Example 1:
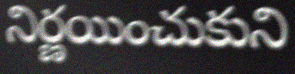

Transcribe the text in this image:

నిర్ణయించుకుని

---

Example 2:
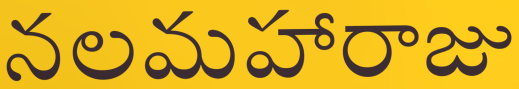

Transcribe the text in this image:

నలమహారాజు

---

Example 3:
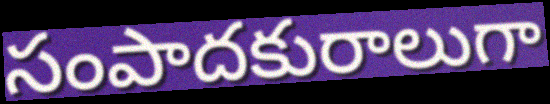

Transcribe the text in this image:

సంపాదకురాలుగా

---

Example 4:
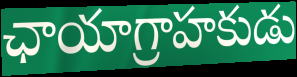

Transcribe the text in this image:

ఛాయాగ్రాహకుడు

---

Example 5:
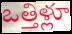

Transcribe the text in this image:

ఒత్తిళ్లూ